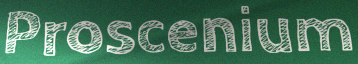
Proscenium